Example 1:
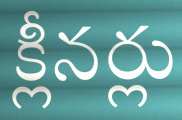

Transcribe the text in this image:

క్లీనర్లు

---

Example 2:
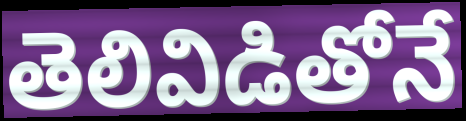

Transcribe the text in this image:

తెలివిడితోనే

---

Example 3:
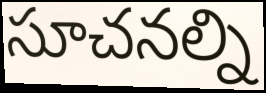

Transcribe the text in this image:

సూచనల్ని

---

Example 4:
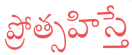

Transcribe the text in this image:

ప్రోత్సహిస్తే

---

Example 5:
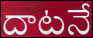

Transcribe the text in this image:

దాటనే